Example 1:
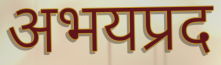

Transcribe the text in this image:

अभयप्रद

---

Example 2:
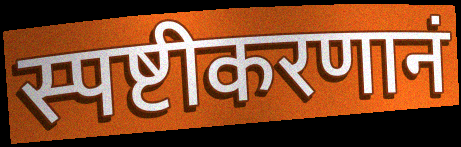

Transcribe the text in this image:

स्पष्टीकरणानं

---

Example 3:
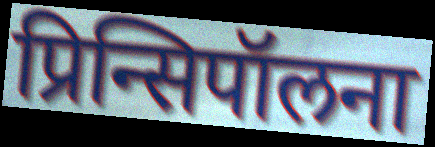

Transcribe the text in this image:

प्रिन्सिपॉलना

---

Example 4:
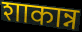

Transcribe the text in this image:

शाकान्न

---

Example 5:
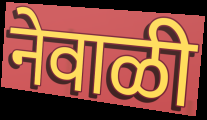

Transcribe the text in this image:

नेवाळी